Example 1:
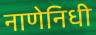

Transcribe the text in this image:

नाणेनिधी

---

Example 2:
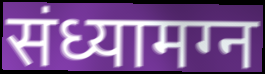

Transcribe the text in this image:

संध्यामग्न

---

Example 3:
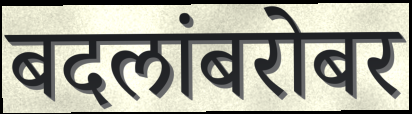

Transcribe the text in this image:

बदलांबरोबर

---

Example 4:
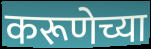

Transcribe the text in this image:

करूणेच्या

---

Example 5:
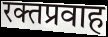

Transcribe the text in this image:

रक्तप्रवाह